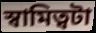
স্বামিত্বটা